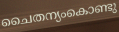
ചൈതന്യംകൊണ്ടു